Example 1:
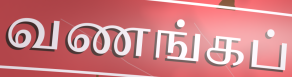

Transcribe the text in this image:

வணங்கப்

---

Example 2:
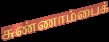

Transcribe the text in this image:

சுண்ணாம்பைக்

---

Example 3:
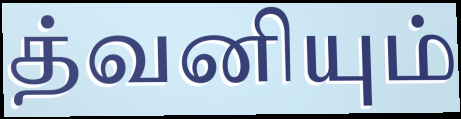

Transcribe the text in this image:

த்வனியும்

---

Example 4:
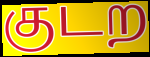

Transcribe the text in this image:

குடற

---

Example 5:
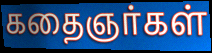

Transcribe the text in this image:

கதைஞர்கள்